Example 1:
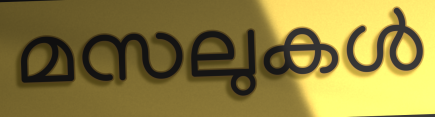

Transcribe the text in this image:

മസലുകൾ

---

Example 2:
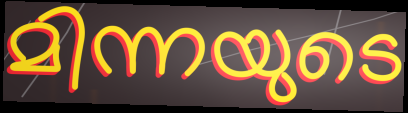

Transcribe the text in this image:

മിന്നയുടെ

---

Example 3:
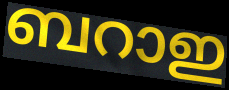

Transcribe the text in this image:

ബറാഇ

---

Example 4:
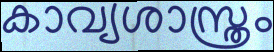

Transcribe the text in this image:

കാവ്യശാസ്ത്രം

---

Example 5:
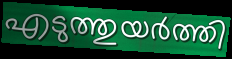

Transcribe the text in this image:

എടുത്തുയർത്തി